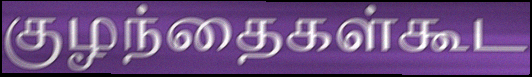
குழந்தைகள்கூட